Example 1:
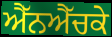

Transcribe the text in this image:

ਐੱਨਐੱਚਕੇ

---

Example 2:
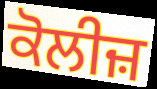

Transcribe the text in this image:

ਕੋਲੀਜ਼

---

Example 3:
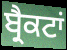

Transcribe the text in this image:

ਬ੍ਰੈਕਟਾਂ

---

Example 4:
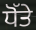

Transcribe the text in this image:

ਧੋੱਤੇ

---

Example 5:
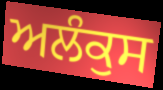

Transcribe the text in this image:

ਅਲੰਕੁਸ